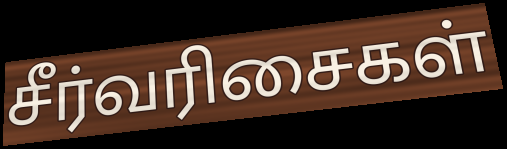
சீர்வரிசைகள்